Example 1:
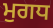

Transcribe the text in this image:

ਮੁਗਧ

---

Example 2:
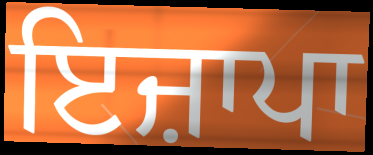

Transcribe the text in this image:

ਇਜ਼ਾਪਾ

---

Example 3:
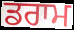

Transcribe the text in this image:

ਡਰਾਮ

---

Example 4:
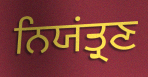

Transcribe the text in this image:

ਨਿਯਂਤ੍ਰਣ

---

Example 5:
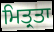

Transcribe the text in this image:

ਮਿਤ੍ਰਤਾ